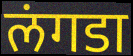
लंगडा